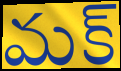
మక్